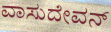
ವಾಸುದೇವನ್